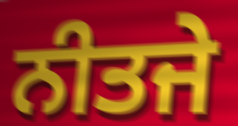
ਨੀਤਜੇ